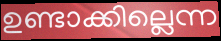
ഉണ്ടാക്കില്ലെന്ന